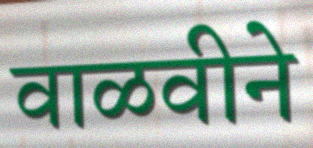
वाळवीने